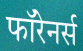
फॉरेनर्स